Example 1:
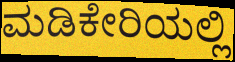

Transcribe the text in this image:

ಮಡಿಕೇರಿಯಲ್ಲಿ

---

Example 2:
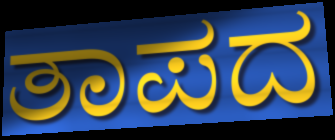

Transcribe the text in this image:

ತಾಪದ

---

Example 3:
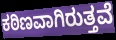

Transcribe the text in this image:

ಕಠಿಣವಾಗಿರುತ್ತವೆ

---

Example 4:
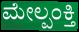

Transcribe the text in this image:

ಮೇಲ್ಪಂಕ್ತಿ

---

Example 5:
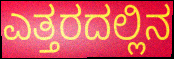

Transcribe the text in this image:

ಎತ್ತರದಲ್ಲಿನ